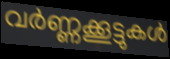
വർണ്ണക്കൂട്ടുകൾ